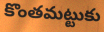
కొంతమట్టుకు